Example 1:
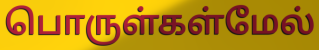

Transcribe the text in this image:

பொருள்கள்மேல்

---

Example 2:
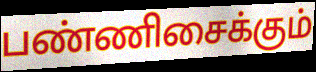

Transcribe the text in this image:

பண்ணிசைக்கும்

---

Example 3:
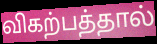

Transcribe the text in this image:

விகற்பத்தால்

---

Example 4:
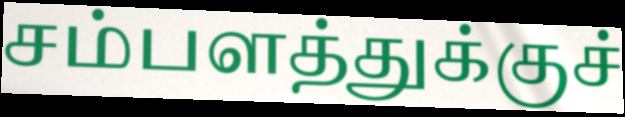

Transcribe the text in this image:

சம்பளத்துக்குச்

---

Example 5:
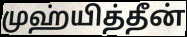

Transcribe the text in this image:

முஹ்யித்தீன்